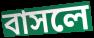
বাসলে